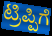
ಟ್ರಿಪ್ಪಿಗೆ